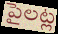
పైలట్ల